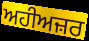
ਅਹੀਅਜ਼ਰ